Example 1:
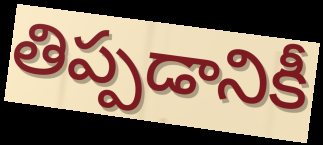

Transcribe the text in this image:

తిప్పడానికీ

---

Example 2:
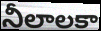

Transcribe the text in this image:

నీలాలకా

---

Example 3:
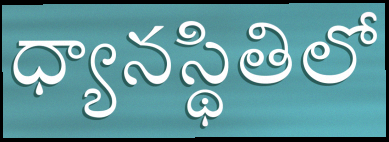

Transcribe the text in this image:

ధ్యానస్థితిలో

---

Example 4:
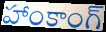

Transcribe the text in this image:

హాంకాంగ్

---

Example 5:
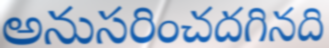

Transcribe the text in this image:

అనుసరించదగినది